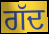
ਗੱਦ